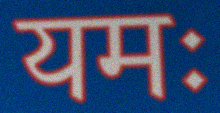
यमः